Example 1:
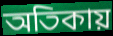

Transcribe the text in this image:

অতিকায়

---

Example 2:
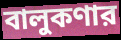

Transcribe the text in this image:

বালুকণার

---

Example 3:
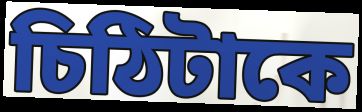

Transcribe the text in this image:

চিঠিটাকে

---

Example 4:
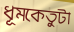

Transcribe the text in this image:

ধূমকেতুটা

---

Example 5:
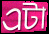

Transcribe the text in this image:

এটা